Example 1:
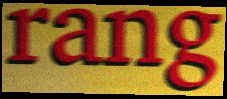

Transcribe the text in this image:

rang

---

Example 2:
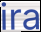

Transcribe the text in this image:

ira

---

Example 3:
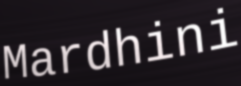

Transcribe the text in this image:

Mardhini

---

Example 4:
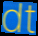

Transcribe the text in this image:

dt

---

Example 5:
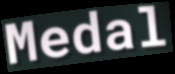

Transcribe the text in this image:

Medal